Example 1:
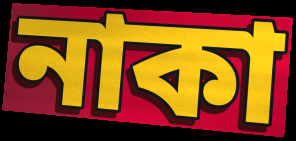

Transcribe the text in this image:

নাকা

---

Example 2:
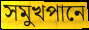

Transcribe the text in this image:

সমুখপানে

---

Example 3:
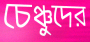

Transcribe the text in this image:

চেঞ্চুদের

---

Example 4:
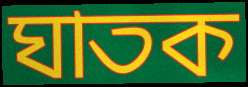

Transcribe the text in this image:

ঘাতক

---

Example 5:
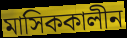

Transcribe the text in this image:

মাসিককালীন